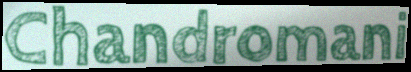
Chandromani